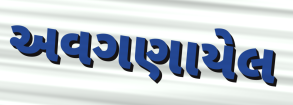
અવગણાયેલ